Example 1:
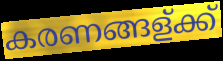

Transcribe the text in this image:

കരണങ്ങള്ക്ക്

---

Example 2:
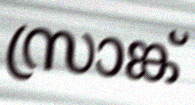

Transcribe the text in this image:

സ്രാങ്ക്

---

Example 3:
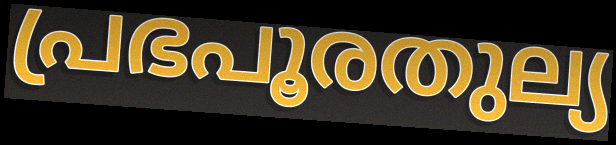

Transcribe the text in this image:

പ്രഭപൂരതുല്യ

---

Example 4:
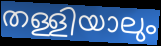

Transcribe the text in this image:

തള്ളിയാലും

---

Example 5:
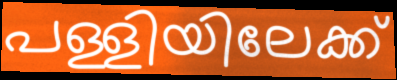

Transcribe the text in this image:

പള്ളിയിലേക്ക്